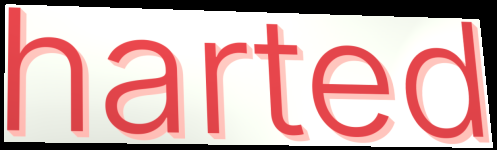
harted